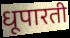
धूपारती